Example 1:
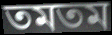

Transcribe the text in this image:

তমতম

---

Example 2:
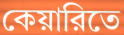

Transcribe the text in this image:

কেয়ারিতে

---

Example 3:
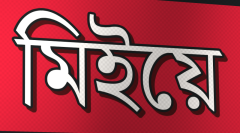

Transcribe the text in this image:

মিইয়ে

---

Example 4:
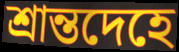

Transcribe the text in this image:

শ্রান্তদেহে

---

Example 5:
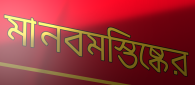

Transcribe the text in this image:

মানবমস্তিষ্কের